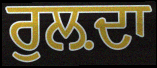
ਰੁਲ਼ਦਾ